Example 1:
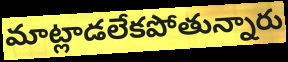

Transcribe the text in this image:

మాట్లాడలేకపోతున్నారు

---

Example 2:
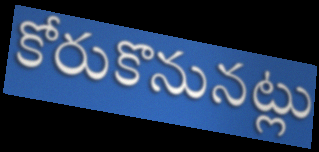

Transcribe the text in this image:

కోరుకొనునట్లు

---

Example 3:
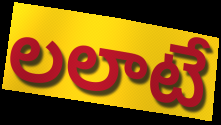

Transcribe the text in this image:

లలాటే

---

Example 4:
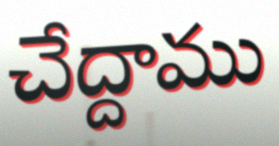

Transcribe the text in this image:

చేద్దాము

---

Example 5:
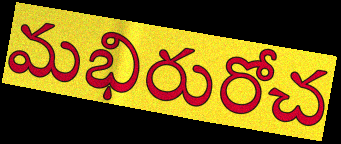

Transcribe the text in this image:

మభిరురోచ